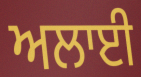
ਅਲਾਈ